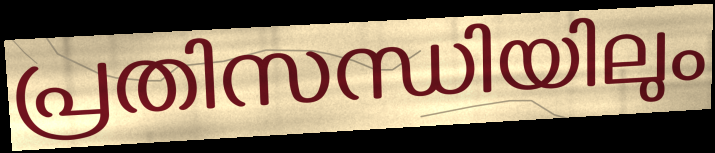
പ്രതിസന്ധിയിലും